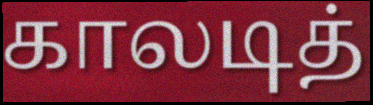
காலடித்